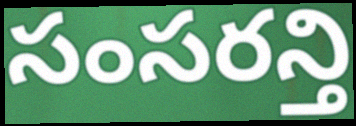
సంసరన్తి